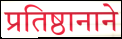
प्रतिष्ठानाने